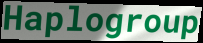
Haplogroup